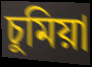
চুমিয়া